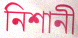
নিশানী